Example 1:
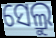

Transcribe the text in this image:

ସେଲ୍ରୁ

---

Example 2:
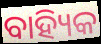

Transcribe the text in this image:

ବାହ୍ୟିକ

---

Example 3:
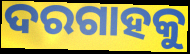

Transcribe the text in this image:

ଦରଗାହକୁ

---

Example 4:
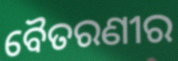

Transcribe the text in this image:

ବୈତରଣୀର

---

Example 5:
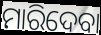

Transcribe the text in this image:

ମାରିଦେବା